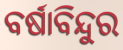
ବର୍ଷାବିନ୍ଦୁର